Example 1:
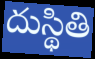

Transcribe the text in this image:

దుస్థితి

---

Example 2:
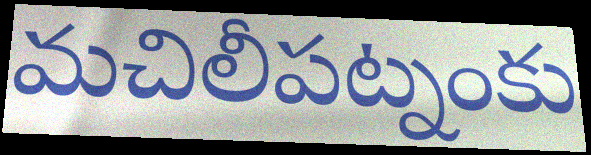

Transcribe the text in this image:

మచిలీపట్నంకు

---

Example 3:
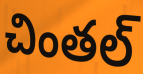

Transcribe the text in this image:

చింతల్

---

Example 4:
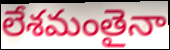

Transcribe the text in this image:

లేశమంతైనా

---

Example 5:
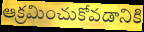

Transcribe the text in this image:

ఆక్రమించుకోవడానికి